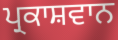
ਪ੍ਰਕਾਸ਼ਵਾਨ